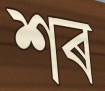
শৰ